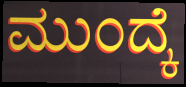
ಮುಂದ್ಕೆ